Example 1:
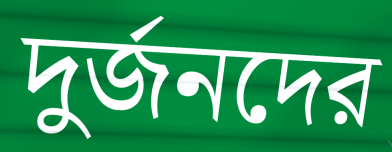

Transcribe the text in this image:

দুর্জনদের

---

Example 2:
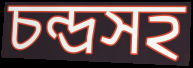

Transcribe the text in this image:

চন্দ্রসহ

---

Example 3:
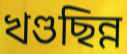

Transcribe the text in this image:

খণ্ডছিন্ন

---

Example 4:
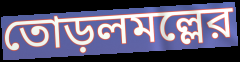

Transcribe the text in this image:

তোড়লমল্লের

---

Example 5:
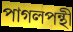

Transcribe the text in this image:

পাগলপন্থী